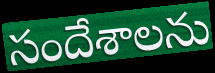
సందేశాలను